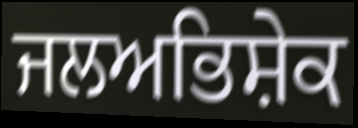
ਜਲਅਭਿਸ਼ੇਕ